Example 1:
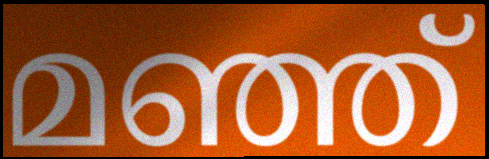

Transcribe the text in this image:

മഞ്ഞ്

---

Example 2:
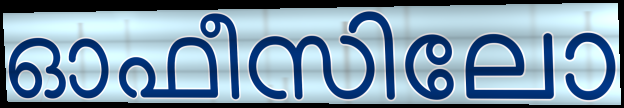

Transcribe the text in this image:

ഓഫീസിലോ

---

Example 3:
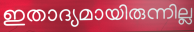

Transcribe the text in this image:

ഇതാദ്യമായിരുന്നില്ല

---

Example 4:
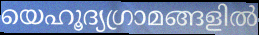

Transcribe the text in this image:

യെഹൂദ്യഗ്രാമങ്ങളിൽ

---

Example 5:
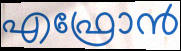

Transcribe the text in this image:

എഫ്രോൻ